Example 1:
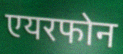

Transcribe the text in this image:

एयरफोन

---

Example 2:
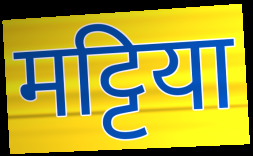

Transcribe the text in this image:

मट्टिया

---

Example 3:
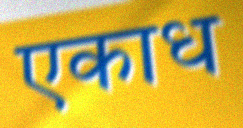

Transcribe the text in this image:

एकाध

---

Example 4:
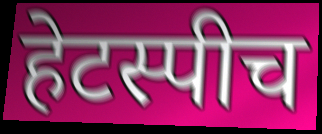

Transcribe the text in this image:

हेटस्पीच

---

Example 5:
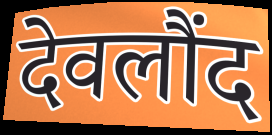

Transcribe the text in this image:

देवलौंद